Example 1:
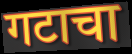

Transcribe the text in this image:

गटाचा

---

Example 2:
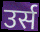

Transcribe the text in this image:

उर्स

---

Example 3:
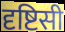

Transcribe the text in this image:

दृष्टिसी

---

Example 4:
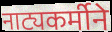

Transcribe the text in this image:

नाट्यकर्मीने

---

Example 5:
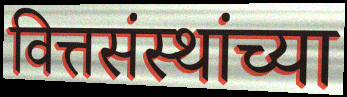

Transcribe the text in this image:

वित्तसंस्थांच्या